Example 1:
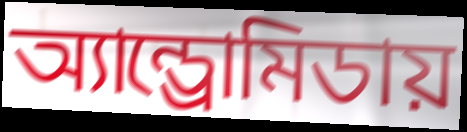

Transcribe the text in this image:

অ্যান্ড্রোমিডায়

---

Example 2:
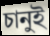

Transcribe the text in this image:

চানুই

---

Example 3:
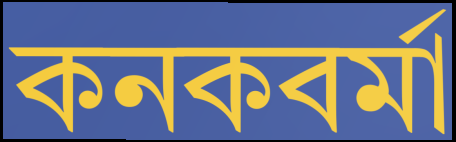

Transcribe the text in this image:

কনকবর্মা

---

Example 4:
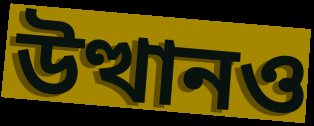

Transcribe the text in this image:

উত্থানও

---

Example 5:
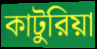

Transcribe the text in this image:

কাটুরিয়া